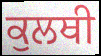
ਕੁਲਥੀ